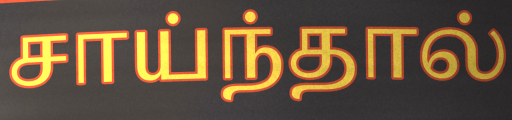
சாய்ந்தால்